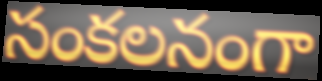
సంకలనంగా